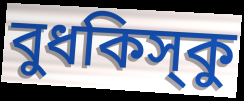
বুধকিস্‌কু